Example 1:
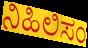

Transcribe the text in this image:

ನಿಹಿಲಿಸಂ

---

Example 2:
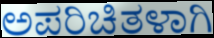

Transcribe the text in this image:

ಅಪರಿಚಿತಳಾಗಿ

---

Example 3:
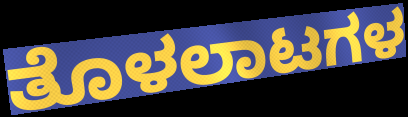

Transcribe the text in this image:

ತೊಳಲಾಟಗಳ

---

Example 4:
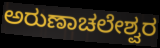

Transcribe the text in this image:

ಅರುಣಾಚಲೇಶ್ವರ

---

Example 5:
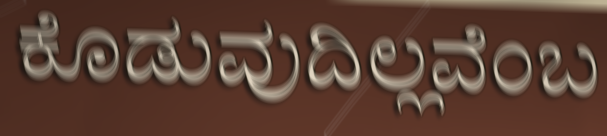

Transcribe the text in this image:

ಕೊಡುವುದಿಲ್ಲವೆಂಬ